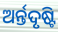
ଅର୍ନ୍ତଦୃଷ୍ଟି